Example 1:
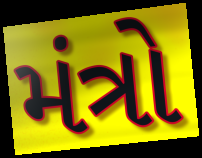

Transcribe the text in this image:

મંત્રો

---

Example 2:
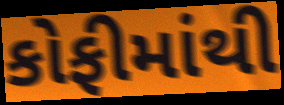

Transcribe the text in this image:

કોફીમાંથી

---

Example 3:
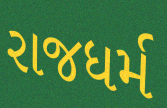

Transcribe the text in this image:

રાજધર્મ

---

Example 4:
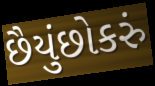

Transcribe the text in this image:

છૈયુંછોકરું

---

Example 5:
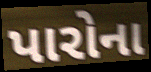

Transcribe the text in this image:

પારોના